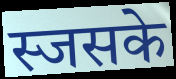
स्जसके